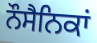
ਨੌਸੈਨਿਕਾਂ